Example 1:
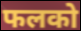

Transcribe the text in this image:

फलको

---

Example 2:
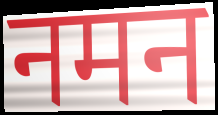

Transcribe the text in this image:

नमन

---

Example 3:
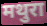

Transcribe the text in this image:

मथुरा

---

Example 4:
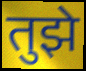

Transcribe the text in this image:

तुझे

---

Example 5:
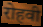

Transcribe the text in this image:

रोहवी